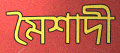
মৈশাদী